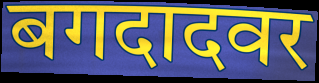
बगदादवर